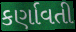
કર્ણાવતી